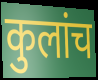
कुलांच